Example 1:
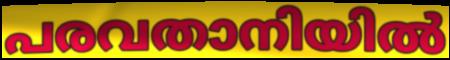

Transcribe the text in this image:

പരവതാനിയിൽ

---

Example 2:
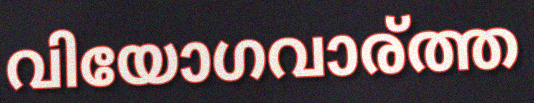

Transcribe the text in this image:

വിയോഗവാര്ത്ത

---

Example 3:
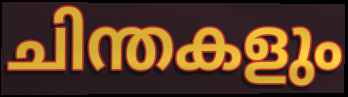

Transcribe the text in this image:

ചിന്തകളും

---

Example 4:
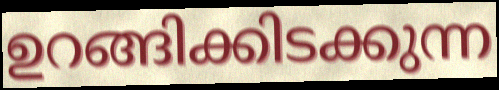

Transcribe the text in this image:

ഉറങ്ങിക്കിടക്കുന്ന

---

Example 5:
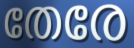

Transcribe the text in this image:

തേരേ